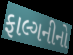
ફાલ્ગનીનો